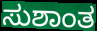
ಸುಶಾಂತ